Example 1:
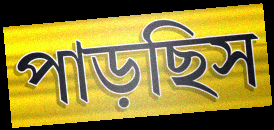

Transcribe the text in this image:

পাড়ছিস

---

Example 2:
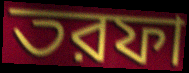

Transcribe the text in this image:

তরফা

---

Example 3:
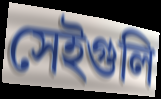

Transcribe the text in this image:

সেইগুলি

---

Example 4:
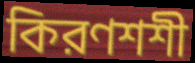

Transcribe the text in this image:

কিরণশশী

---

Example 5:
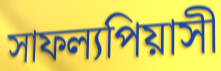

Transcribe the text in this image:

সাফল্যপিয়াসী